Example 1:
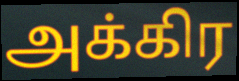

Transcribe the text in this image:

அக்கிர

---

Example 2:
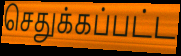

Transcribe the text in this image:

செதுக்கப்பட்ட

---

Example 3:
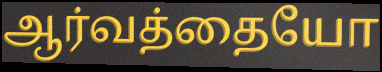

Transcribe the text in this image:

ஆர்வத்தையோ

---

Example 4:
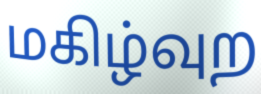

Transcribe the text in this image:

மகிழ்வுற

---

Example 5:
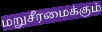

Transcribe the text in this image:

மறுசீரமைக்கும்